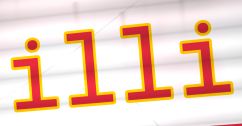
illi